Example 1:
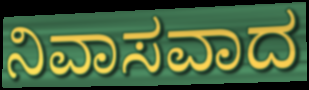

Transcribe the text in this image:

ನಿವಾಸವಾದ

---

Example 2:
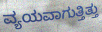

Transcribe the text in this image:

ವ್ಯಯವಾಗುತ್ತಿತ್ತು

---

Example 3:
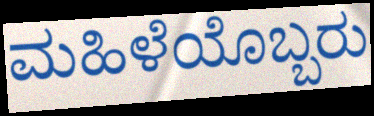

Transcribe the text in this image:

ಮಹಿಳೆಯೊಬ್ಬರು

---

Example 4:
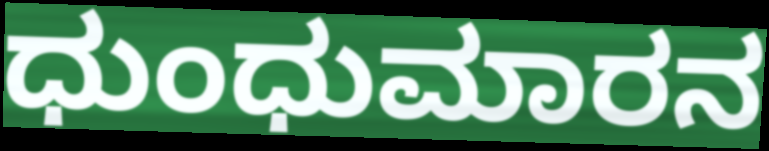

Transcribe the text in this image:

ಧುಂಧುಮಾರನ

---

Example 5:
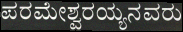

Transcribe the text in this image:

ಪರಮೇಶ್ವರಯ್ಯನವರು